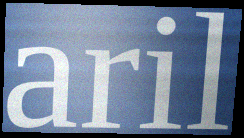
aril